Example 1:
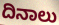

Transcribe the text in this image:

ದಿನಾಲು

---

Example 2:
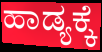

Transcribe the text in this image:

ಹಾಡ್ಯಕ್ಕೆ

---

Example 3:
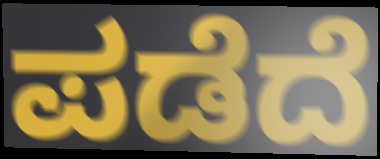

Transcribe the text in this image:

ಪಡೆದೆ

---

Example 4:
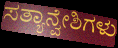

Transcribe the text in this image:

ಸತ್ಯಾನ್ವೇಶಿಗಳು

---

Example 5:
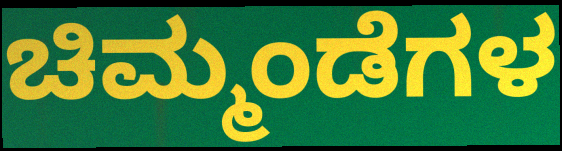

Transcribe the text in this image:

ಚಿಮ್ಮಂಡೆಗಳ